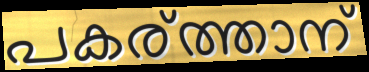
പകര്ത്താന്